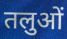
तलुओं